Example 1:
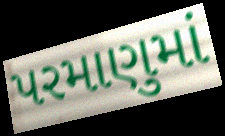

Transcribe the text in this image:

પરમાણુમાં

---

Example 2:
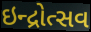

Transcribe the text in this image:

ઇન્દ્રોત્સવ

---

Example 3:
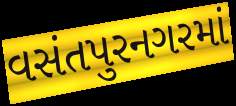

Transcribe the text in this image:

વસંતપુરનગરમાં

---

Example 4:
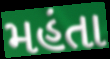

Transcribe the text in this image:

મહંતા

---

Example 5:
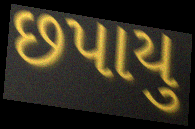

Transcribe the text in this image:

છપાયુ